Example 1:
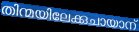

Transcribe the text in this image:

തിന്മയിലേക്കുചായാന്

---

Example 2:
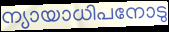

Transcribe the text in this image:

ന്യായാധിപനോടു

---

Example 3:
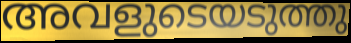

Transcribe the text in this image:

അവളുടെയടുത്തു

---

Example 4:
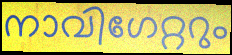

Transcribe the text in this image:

നാവിഗേറ്ററും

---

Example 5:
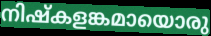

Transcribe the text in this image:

നിഷ്കളങ്കമായൊരു